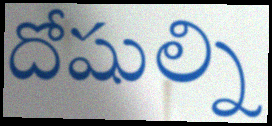
దోషుల్ని